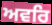
ਅਵਰਿ